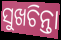
ସୁଖଚିନ୍ତା